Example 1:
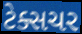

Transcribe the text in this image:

ટેક્સચર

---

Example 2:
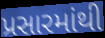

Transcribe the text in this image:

પ્રસારમાંથી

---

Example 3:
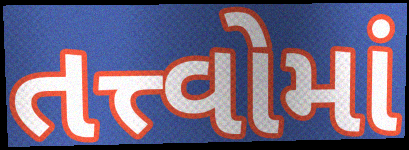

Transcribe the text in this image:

તત્ત્વોમાં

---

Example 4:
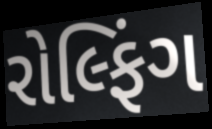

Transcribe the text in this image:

રોલ્ફિંગ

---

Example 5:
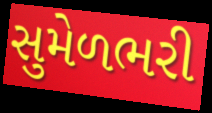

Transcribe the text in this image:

સુમેળભરી